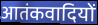
आतंकवादियों